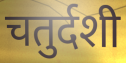
चतुर्दशी